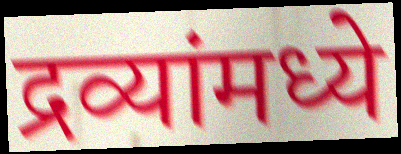
द्रव्यांमध्ये